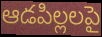
ఆడపిల్లలపై